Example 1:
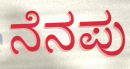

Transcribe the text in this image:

ನೆನಪು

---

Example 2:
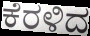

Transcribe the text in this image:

ಕೆರಳಿದ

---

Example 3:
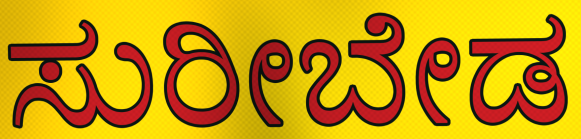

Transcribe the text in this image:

ಸುರೀಬೇಡ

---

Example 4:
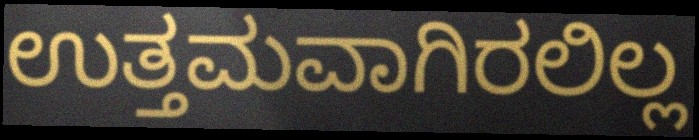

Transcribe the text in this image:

ಉತ್ತಮವಾಗಿರಲಿಲ್ಲ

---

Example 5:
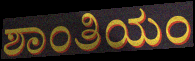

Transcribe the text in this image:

ಶಾಂತಿಯಂ